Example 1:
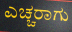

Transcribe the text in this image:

ಎಚ್ಚರಾಗು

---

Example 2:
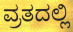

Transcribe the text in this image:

ವ್ರತದಲ್ಲಿ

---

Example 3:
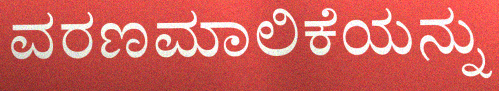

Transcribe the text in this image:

ವರಣಮಾಲಿಕೆಯನ್ನು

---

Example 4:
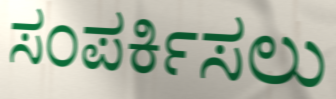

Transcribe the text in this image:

ಸಂಪರ್ಕಿಸಲು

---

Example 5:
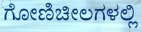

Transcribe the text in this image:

ಗೋಣಿಚೀಲಗಳಲ್ಲಿ